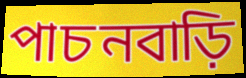
পাচনবাড়ি